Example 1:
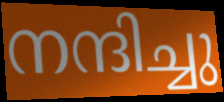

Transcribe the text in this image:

നന്ദിച്ചു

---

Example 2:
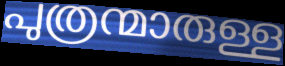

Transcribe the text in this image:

പുത്രന്മാരുള്ള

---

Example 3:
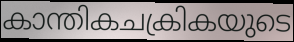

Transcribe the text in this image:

കാന്തികചക്രികയുടെ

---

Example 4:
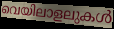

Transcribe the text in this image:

വെയിലാളലുകൾ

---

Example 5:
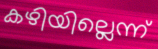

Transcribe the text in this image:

കഴിയില്ലെന്ന്